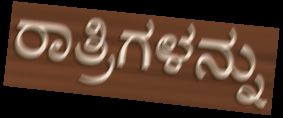
ರಾತ್ರಿಗಳನ್ನು